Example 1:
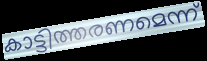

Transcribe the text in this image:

കാട്ടിത്തരണമെന്ന്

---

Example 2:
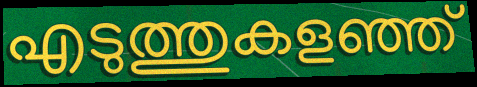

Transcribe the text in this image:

എടുത്തുകളഞ്ഞ്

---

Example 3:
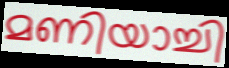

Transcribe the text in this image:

മണിയാച്ചി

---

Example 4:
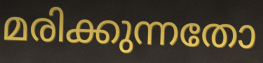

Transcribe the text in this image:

മരിക്കുന്നതോ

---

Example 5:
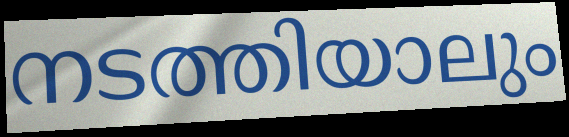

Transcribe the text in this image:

നടത്തിയാലും